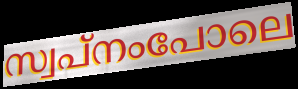
സ്വപ്നംപോലെ